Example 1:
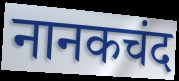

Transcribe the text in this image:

नानकचंद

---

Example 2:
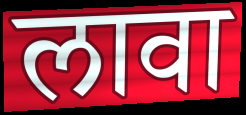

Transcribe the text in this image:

लावा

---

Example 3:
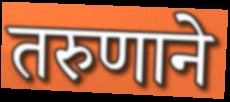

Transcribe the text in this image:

तरुणाने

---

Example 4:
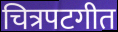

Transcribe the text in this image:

चित्रपटगीत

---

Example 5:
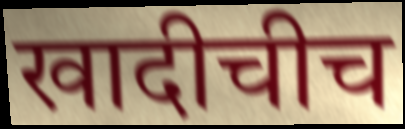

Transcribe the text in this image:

खादीचीच